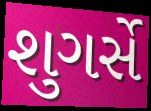
શુગર્સે